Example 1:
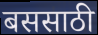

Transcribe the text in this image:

बससाठी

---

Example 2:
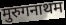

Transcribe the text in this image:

मुरुगनाथम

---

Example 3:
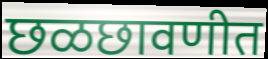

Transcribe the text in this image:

छळछावणीत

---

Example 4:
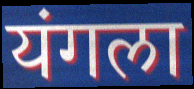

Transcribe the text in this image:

यंगला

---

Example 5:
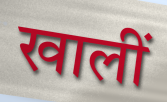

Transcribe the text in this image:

खालीं